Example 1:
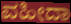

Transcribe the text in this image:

ವಹೀದಾ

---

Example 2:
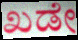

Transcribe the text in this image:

ಖಡೇ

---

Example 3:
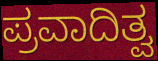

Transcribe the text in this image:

ಪ್ರವಾದಿತ್ವ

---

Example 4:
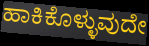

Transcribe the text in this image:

ಹಾಕಿಕೊಳ್ಳುವುದೇ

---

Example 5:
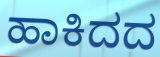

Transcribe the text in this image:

ಹಾಕಿದದ